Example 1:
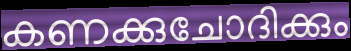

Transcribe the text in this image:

കണക്കുചോദിക്കും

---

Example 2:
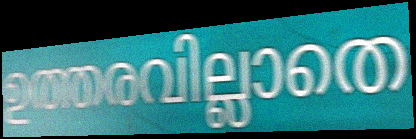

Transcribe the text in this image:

ഉത്തരവില്ലാതെ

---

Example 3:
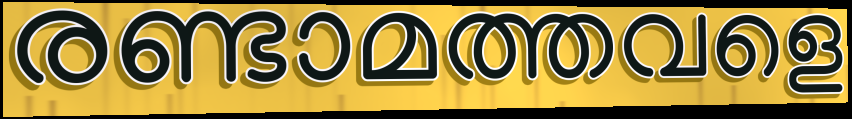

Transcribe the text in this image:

രണ്ടാമത്തവളെ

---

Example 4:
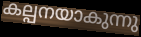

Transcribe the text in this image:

കല്പനയാകുന്നു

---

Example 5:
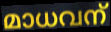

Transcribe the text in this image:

മാധവന്